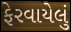
ફેરવાયેલું